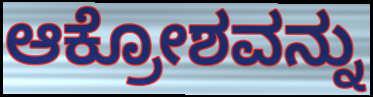
ಆಕ್ರೋಶವನ್ನು